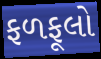
ફળફૂલો